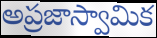
అప్రజాస్వామిక